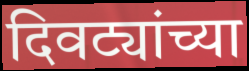
दिवट्यांच्या